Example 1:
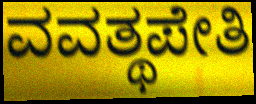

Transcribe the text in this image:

ವವತ್ಥಪೇತಿ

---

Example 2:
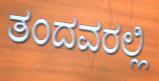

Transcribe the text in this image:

ತಂದವರಲ್ಲಿ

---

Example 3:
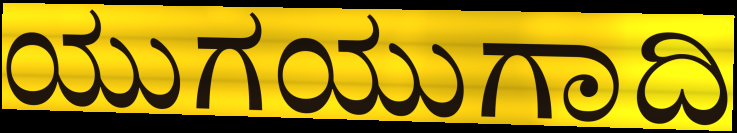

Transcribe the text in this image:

ಯುಗಯುಗಾದಿ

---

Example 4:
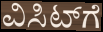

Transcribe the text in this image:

ವಿಸಿಟ್‌ಗೆ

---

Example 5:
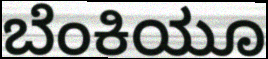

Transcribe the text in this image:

ಬೆಂಕಿಯೂ